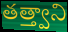
తత్త్వాని